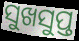
ସୁଖସୁପ୍ତ